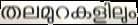
തലമുറകളിലും